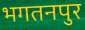
भगतनपुर